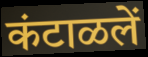
कंटाळलें